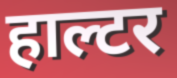
हाल्टर